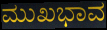
ಮುಖಭಾವ